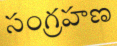
సంగ్రహణ